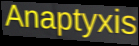
Anaptyxis